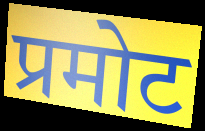
प्रमोट